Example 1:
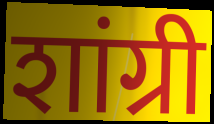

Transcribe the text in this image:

शांग्री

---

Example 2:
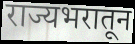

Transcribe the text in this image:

राज्यभरातून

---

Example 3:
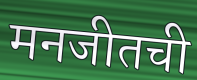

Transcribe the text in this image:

मनजीतची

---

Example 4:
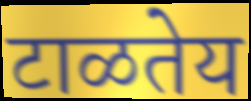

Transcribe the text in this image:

टाळतेय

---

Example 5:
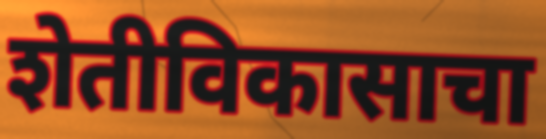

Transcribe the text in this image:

शेतीविकासाचा